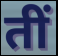
तीं